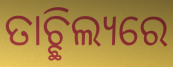
ତାଚ୍ଛିଲ୍ୟରେ